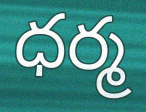
ధర్మ